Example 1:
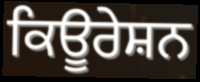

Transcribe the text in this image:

ਕਿਊਰੇਸ਼ਨ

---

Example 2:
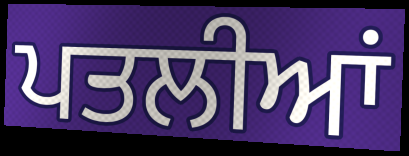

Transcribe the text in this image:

ਪਤਲੀਆਂ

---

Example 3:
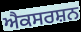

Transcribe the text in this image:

ਐਕਸਰਸ਼ਨ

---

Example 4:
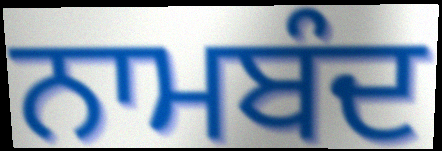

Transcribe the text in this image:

ਨਾਮਬੰਦ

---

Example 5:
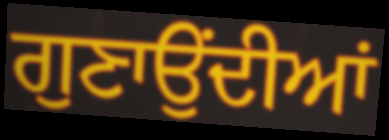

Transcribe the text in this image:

ਗੁਣਾਉਂਦੀਆਂ